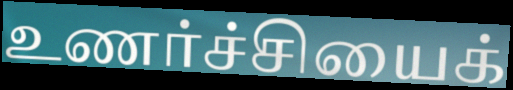
உணர்ச்சியைக்